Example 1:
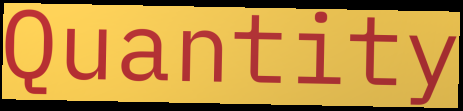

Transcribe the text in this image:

Quantity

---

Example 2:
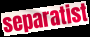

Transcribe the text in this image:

separatist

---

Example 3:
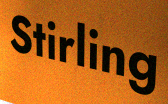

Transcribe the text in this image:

Stirling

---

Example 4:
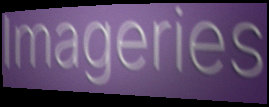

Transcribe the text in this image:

Imageries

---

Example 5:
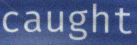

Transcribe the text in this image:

caught